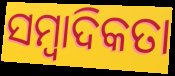
ସମ୍ବାଦିକତା